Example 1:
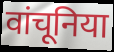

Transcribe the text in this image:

वांचूनिया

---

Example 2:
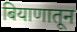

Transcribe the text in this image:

बियाणातून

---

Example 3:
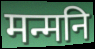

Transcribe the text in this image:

मन्मनि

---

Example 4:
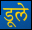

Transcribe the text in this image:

डूले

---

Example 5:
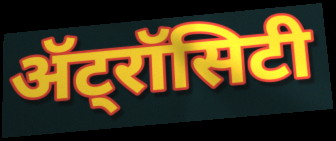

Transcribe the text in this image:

ॲट्रॉसिटी